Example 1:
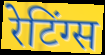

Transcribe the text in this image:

रेटिंग्स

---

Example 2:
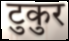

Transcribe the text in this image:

टुकुर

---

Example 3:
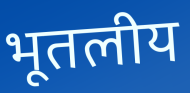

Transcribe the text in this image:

भूतलीय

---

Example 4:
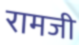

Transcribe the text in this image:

रामजी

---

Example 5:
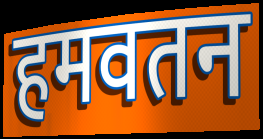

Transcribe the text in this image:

हमवतन